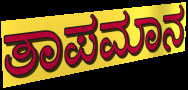
ತಾಪಮಾನ